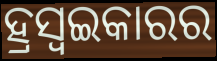
ହ୍ରସ୍ୱଇକାରର